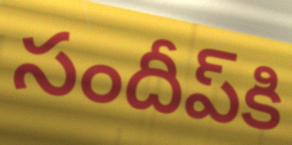
సందీప్‌కి